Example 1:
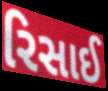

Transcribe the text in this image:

રિસાઈ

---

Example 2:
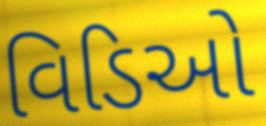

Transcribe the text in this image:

વિડિઓ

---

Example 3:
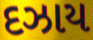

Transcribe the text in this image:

દઝાય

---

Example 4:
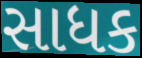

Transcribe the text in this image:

સાધક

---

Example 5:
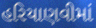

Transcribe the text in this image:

હરિયાણવીમાં